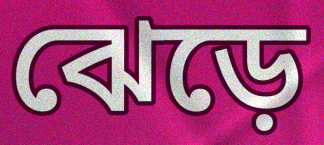
ঝেড়ে